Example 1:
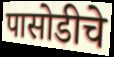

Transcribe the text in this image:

पासोडीचे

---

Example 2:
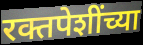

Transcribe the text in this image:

रक्तपेशींच्या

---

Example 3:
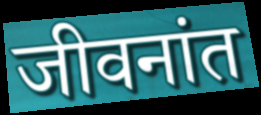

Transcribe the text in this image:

जीवनांत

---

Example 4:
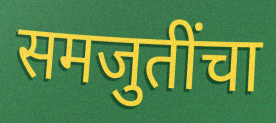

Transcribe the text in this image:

समजुतींचा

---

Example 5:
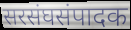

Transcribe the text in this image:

सरसंघसंपादक